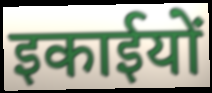
इकाईयों